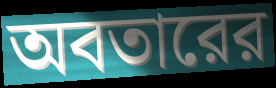
অবতারের